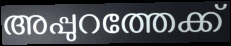
അപ്പുറത്തേക്ക്